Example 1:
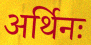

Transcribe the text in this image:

अर्थिनः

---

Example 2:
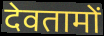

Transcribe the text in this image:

देवतामों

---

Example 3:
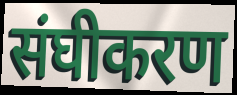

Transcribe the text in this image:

संघीकरण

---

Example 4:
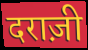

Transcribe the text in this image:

दराज़ी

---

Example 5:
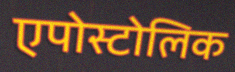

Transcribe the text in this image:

एपोस्टोलिक